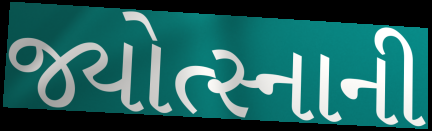
જ્યોત્સ્નાની